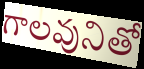
గాలవునితో